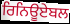
ਰਿਨਿਊਏਬਲ